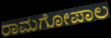
ರಾಮಗೋಪಾಲ